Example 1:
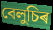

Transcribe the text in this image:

বেলুচিৰ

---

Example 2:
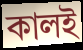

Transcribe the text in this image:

কালই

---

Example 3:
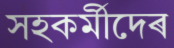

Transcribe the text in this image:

সহকৰ্মীদেৰ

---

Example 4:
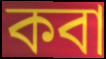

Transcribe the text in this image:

কবা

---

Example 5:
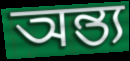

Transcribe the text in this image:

অন্ত্য